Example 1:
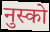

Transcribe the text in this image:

नुस्को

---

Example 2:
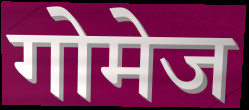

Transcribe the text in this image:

गोमेज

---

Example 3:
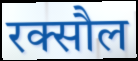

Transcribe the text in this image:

रक्‍सौल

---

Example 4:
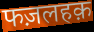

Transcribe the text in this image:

फज़लहक़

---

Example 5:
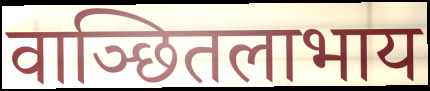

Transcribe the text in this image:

वाञ्छितलाभाय